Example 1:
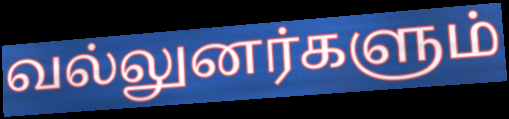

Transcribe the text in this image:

வல்லுனர்களும்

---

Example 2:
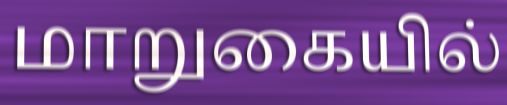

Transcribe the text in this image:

மாறுகையில்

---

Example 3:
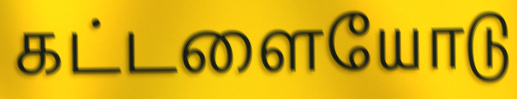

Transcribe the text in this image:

கட்டளையோடு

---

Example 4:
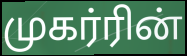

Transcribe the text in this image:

முகர்ரின்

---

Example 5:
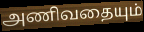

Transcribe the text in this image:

அணிவதையும்